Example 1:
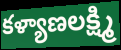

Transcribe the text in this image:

కళ్యాణలక్ష్మి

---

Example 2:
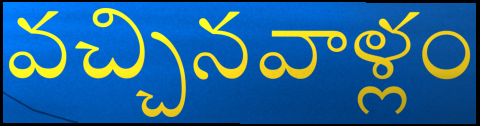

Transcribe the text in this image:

వచ్చినవాళ్లం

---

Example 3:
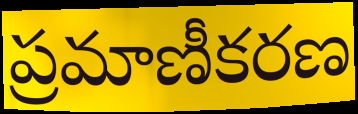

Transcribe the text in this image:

ప్రమాణీకరణ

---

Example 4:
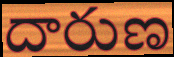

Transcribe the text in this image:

దారుణ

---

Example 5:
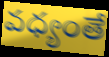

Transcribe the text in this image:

వధ్యంతే